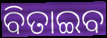
ବିତାଇବ